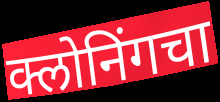
क्लोनिंगचा